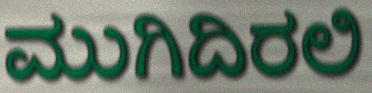
ಮುಗಿದಿರಲಿ